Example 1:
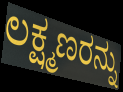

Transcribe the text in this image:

ಲಕ್ಷ್ಮಣರನ್ನು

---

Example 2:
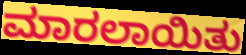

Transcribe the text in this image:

ಮಾರಲಾಯಿತು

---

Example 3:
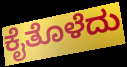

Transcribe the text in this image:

ಕೈತೊಳೆದು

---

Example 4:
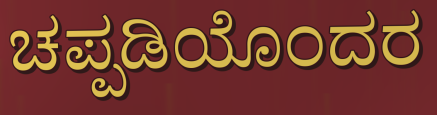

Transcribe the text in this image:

ಚಪ್ಪಡಿಯೊಂದರ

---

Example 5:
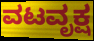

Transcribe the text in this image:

ವಟವೃಕ್ಷ